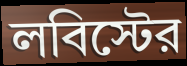
লবিস্টের